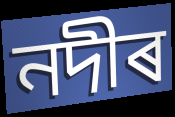
নদীৰ